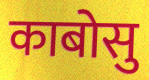
काबोसु